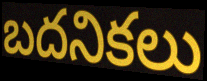
బదనికలు